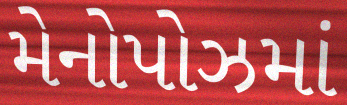
મેનોપોઝમાં